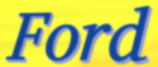
Ford